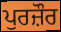
ਪੁਰਜ਼ੌਰ